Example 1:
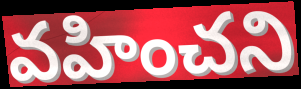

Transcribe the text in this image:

వహించని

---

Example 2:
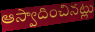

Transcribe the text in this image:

ఆస్వాదించినట్లు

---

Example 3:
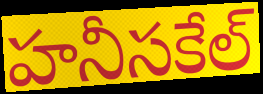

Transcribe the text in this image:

హనీసకేల్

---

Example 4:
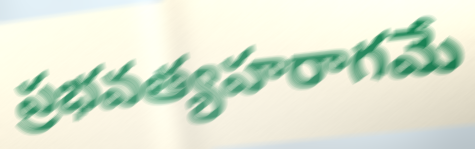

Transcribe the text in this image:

ప్రభవత్యహరాగమే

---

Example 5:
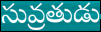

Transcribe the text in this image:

సువ్రతుడు